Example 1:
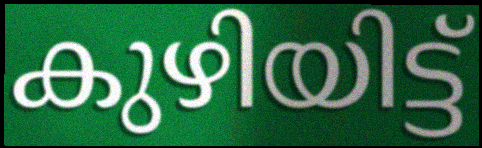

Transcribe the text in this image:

കുഴിയിട്ട്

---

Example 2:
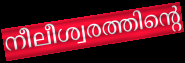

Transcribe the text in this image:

നീലീശ്വരത്തിന്റെ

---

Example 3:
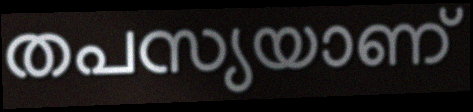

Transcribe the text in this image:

തപസ്യയാണ്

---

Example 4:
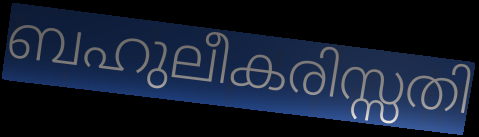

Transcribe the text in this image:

ബഹുലീകരിസ്സതി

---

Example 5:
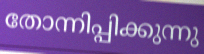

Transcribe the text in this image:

തോന്നിപ്പിക്കുന്നു